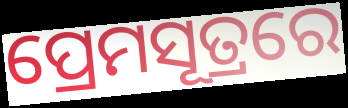
ପ୍ରେମସୂତ୍ରରେ